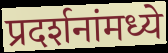
प्रदर्शनांमध्ये